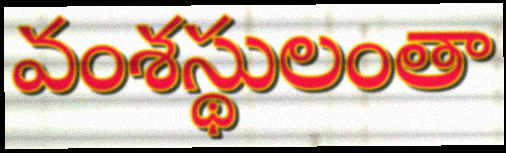
వంశస్థులంతా